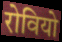
रोवियो